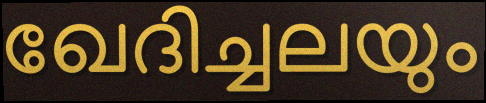
ഖേദിച്ചലയും